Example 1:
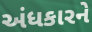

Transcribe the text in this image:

અંધકારને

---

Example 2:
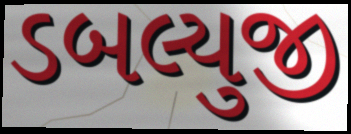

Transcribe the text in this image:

ડબલ્યુજી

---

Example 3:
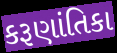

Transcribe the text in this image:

કરૂણાંતિકા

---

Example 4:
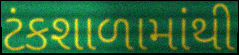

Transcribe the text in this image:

ટંકશાળામાંથી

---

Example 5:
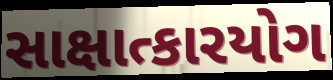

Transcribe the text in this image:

સાક્ષાત્કારયોગ